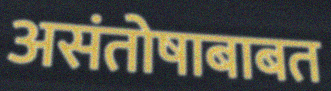
असंतोषाबाबत